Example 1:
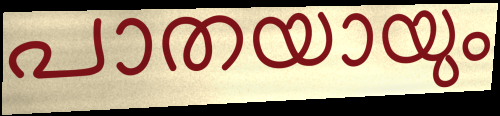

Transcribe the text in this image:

പാതയായും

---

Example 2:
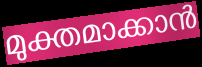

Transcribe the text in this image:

മുക്തമാക്കാൻ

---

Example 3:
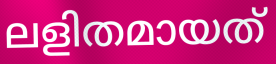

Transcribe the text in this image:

ലളിതമായത്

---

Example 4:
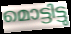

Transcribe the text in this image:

മൊട്ടിട്ടു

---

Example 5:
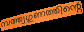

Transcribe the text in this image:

സത്ത്വഗുണത്തിന്റെ